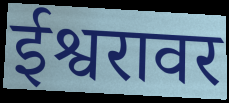
ईश्वरावर